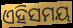
ଏହିସମୟ